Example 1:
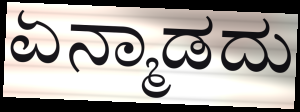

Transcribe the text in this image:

ಏನ್ಮಾಡದು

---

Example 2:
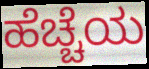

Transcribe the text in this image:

ಹೆಚ್ಚೆಯ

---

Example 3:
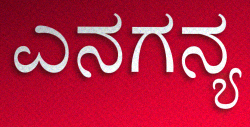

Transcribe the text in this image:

ಎನಗನ್ಯ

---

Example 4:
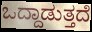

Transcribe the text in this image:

ಒದ್ದಾಡುತ್ತದೆ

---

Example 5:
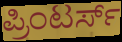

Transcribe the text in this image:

ಪ್ರಿಂಟರ್ಸ್